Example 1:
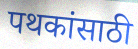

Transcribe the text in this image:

पथकांसाठी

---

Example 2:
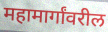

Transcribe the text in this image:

महामार्गांवरील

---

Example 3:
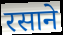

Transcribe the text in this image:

रसाने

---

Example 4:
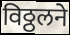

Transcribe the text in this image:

विठ्ठलने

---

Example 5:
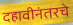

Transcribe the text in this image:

दहावीनंतरचे